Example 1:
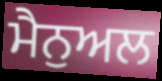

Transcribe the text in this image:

ਮੈਨੁਅਲ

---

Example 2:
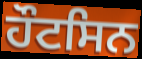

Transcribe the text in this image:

ਹੌਟਸਿਨ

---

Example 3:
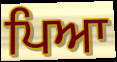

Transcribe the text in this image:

ਪਿਆ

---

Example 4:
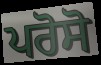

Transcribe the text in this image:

ਪਰੋਸੋ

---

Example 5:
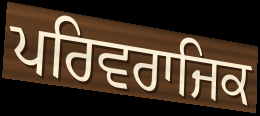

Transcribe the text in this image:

ਪਰਿਵਰਾਜਿਕ